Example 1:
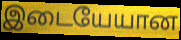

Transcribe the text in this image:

இடையேயான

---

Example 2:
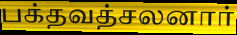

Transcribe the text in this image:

பக்தவத்சலனார்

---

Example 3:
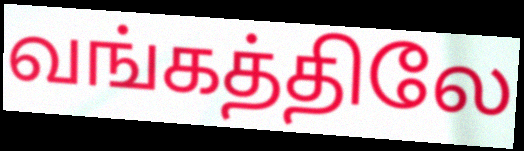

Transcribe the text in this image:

வங்கத்திலே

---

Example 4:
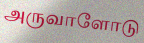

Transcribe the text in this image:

அருவாளோடு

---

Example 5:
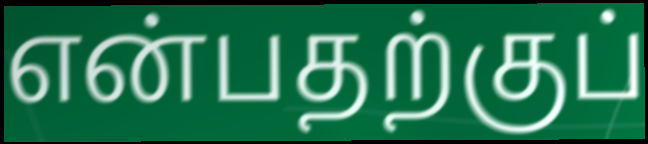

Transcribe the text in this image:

என்பதற்குப்